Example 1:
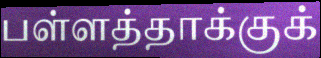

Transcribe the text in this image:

பள்ளத்தாக்குக்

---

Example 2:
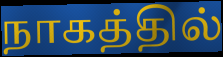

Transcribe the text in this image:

நாகத்தில்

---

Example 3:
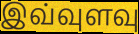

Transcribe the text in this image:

இவ்வுளவு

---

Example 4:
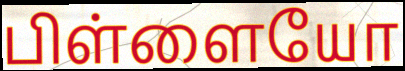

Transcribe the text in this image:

பிள்ளையோ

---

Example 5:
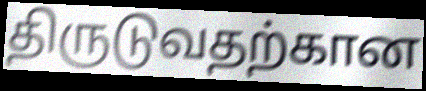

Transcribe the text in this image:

திருடுவதற்கான